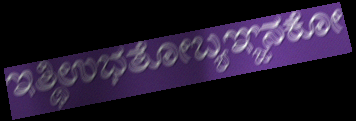
ಇತ್ಥಿಉಭತೋಬ್ಯಞ್ಜನಕೋ